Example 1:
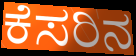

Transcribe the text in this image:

ಕೆಸರಿನ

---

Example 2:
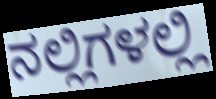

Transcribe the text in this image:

ನಲ್ಲಿಗಳಲ್ಲಿ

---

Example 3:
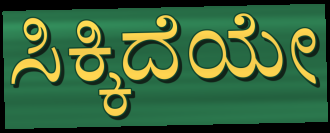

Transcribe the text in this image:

ಸಿಕ್ಕಿದೆಯೇ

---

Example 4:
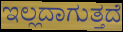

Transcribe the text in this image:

ಇಲ್ಲದಾಗುತ್ತದೆ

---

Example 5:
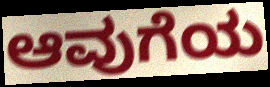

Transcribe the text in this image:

ಆವುಗೆಯ